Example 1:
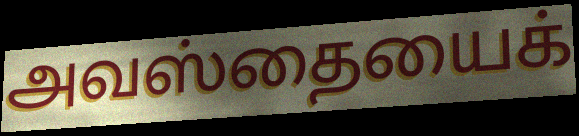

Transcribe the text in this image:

அவஸ்தையைக்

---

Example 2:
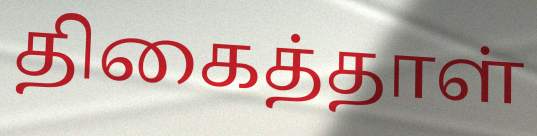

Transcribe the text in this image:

திகைத்தாள்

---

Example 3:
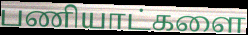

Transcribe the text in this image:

பணியாட்களை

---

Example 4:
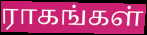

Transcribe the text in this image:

ராகங்கள்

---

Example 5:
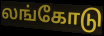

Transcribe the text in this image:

லங்கோடு